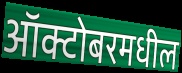
ऑक्टोबरमधील